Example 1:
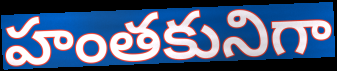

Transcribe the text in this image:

హంతకునిగా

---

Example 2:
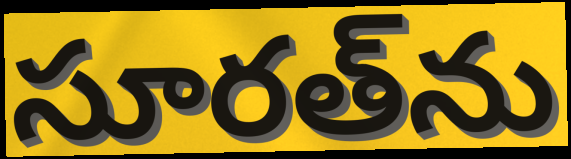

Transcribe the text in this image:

సూరత్‌ను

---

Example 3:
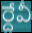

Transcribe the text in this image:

ర్దేవీ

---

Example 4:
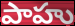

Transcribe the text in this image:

పాహు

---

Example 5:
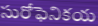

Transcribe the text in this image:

సురోఫెనికయ